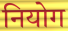
नियोग